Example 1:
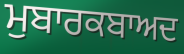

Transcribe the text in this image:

ਮੁਬਾਰਕਬਾਅਦ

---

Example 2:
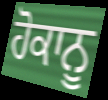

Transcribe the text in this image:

ਹੋਕਾਨੂ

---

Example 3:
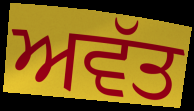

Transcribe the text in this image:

ਅਵੱਤ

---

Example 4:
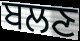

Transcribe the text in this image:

ਬਲਣ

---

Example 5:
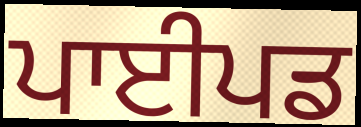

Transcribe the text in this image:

ਪਾਈਪਡ